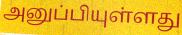
அனுப்பியுள்ளது